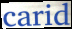
carid